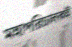
মহাপরিচালকই